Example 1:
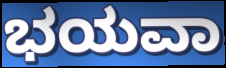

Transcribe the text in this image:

ಭಯವಾ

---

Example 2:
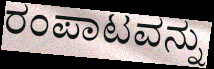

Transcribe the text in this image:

ರಂಪಾಟವನ್ನು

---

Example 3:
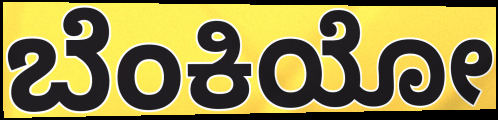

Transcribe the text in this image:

ಬೆಂಕಿಯೋ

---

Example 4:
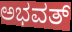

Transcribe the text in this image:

ಅಭವತ್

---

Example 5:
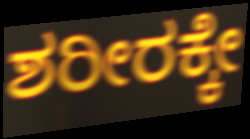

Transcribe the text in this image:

ಶರೀರಕ್ಕೇ